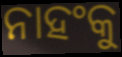
ନାହଂକୁ